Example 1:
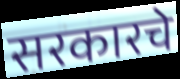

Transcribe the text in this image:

सरकारचे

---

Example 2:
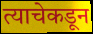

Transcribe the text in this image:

त्याचेकडून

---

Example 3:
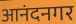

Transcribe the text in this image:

आनंदनगर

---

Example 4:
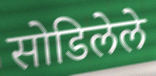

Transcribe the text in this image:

सोडिलेले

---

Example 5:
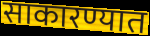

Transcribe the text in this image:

साकारण्यात